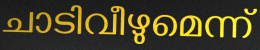
ചാടിവീഴുമെന്ന്